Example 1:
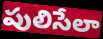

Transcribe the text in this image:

పులిసేలా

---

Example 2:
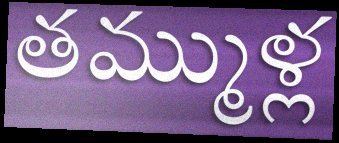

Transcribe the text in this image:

తమ్ముళ్ల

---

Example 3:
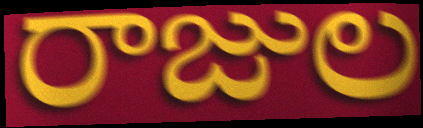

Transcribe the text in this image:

రాజుల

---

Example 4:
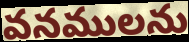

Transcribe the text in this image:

వనములను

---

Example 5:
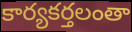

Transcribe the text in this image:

కార్యకర్తలంతా